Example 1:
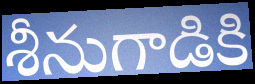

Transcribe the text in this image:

శీనుగాడికి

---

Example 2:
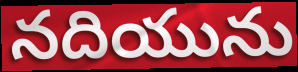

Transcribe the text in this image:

నదియును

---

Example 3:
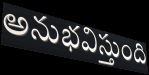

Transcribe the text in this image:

అనుభవిస్తుంది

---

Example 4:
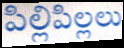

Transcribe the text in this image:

పిల్లిపిల్లలు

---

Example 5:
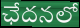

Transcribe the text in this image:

ఛేదనలో